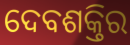
ଦେବଶକ୍ତିର